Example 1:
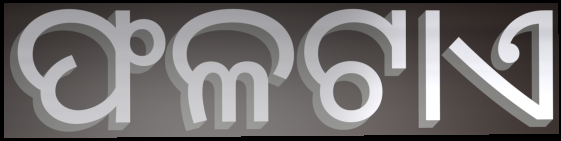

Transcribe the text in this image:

ଫଳଟାଏ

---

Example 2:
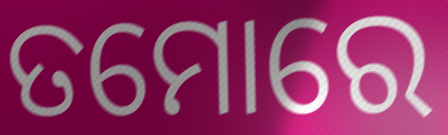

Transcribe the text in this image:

ତମୋରେ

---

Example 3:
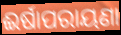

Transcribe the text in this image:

ଈର୍ଷାପରାୟଣା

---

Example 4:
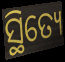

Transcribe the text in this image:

ସ୍ଥିତ୍ୟେ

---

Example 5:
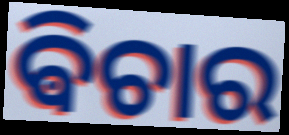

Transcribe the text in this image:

ଵିଚାର